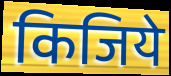
किजिये